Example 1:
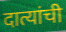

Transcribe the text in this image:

दात्यांची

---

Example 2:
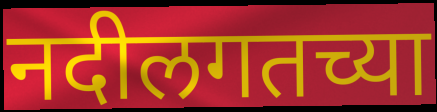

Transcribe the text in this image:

नदीलगतच्या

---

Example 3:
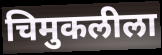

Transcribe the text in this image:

चिमुकलीला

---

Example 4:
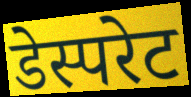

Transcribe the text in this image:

डेस्परेट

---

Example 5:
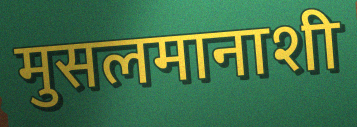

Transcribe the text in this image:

मुसलमानाशी